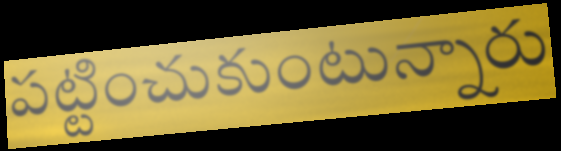
పట్టించుకుంటున్నారు